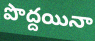
పొద్దయినా